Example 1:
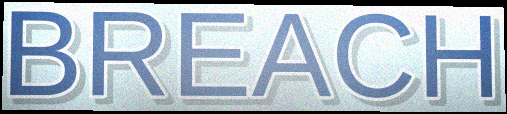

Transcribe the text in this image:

BREACH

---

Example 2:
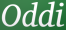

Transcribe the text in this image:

Oddi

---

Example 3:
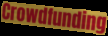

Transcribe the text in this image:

Crowdfunding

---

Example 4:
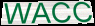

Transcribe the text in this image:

WACC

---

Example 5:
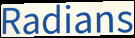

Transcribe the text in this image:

Radians